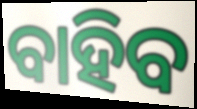
ବାହିବ